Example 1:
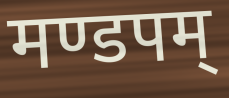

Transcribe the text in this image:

मण्डपम्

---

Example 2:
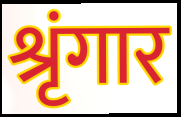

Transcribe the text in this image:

श्रृंगार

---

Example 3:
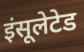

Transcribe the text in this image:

इंसूलेटेड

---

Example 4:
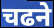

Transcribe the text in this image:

चढने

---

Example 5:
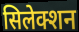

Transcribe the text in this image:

सिलेक्शन